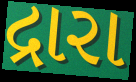
દ્રારા